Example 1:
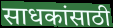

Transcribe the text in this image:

साधकांसाठी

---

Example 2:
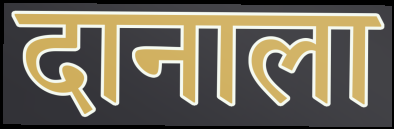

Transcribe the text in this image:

दानाला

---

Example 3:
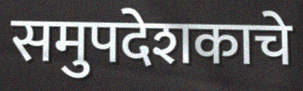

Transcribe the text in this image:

समुपदेशकाचे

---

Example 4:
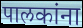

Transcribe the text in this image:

पालकांना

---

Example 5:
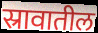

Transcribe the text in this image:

स्रावातील